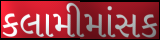
કલામીમાંસક